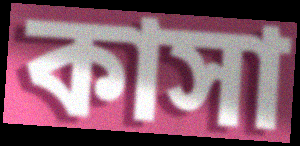
কাসা